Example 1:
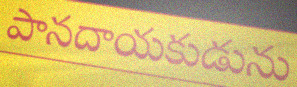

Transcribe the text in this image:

పానదాయకుడును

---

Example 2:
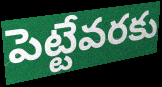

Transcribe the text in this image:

పెట్టేవరకు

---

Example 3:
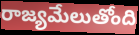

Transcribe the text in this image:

రాజ్యమేలుతోంది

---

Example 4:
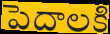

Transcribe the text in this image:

పెదాలకి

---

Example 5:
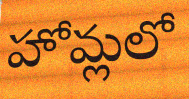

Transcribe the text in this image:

హోమ్లలో